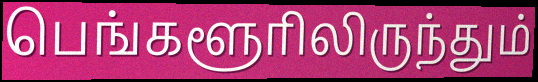
பெங்களூரிலிருந்தும்